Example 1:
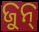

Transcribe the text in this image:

ଜୁନ୍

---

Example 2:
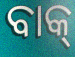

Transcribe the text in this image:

ବାକ୍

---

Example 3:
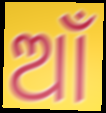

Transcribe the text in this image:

ଆଁ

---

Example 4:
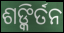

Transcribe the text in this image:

ଶଙ୍କିର୍ତନ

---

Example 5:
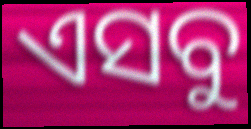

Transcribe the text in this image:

ଏସବୁ